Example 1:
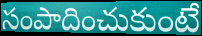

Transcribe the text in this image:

సంపాదించుకుంటే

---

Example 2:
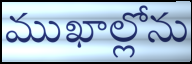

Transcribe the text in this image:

ముఖాల్లోను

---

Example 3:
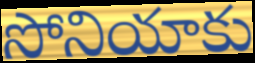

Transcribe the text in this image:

సోనియాకు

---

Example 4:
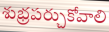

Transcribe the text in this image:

శుభ్రపర్చుకోవాలి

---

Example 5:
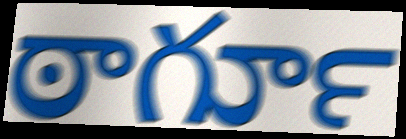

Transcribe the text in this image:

ఠాగూర్‍